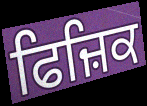
ਫਿਜ਼ਿਕ